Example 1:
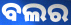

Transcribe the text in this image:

ବଲର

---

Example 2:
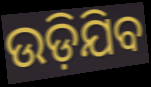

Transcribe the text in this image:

ଉଡ଼ିଯିବ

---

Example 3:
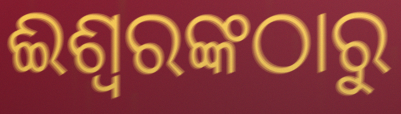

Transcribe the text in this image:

ଈଶ୍ଵରଙ୍କଠାରୁ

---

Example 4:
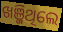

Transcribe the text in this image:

ଖଞ୍ଜିଥିଲେ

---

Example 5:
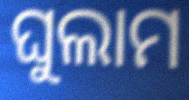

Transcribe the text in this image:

ଘୁଲାମ